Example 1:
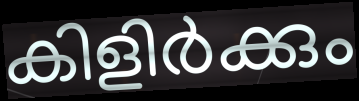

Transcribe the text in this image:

കിളിർക്കും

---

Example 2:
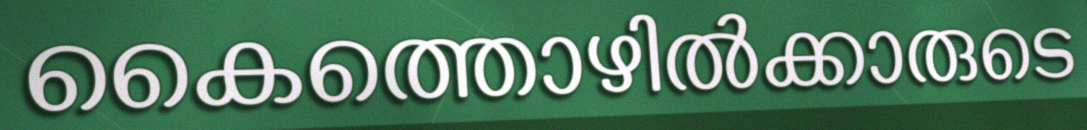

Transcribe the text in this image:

കൈത്തൊഴിൽക്കാരുടെ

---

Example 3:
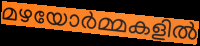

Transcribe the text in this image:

മഴയോർമ്മകളിൽ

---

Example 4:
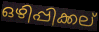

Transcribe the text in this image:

ഒഴിപ്പിക്കല്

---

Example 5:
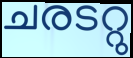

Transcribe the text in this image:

ചരടറ്റു